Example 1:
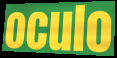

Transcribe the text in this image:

oculo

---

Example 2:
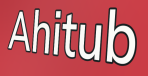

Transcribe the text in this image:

Ahitub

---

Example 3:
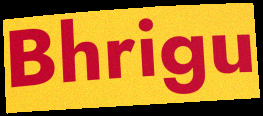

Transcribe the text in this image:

Bhrigu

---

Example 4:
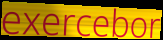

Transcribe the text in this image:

exercebor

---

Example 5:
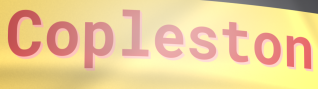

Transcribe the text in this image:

Copleston